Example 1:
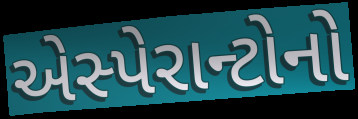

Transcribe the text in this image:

એસ્પેરાન્ટોનો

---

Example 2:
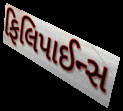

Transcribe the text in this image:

ફિલિપાઈન્સ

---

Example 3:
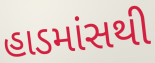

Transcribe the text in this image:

હાડમાંસથી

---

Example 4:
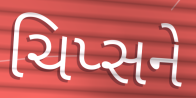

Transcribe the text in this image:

ચિપ્સને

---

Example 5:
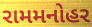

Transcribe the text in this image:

રામમનોહર